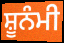
ਸ਼ੂਨੰਮੀ